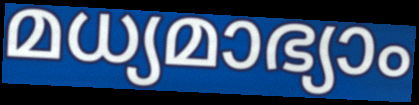
മധ്യമാഭ്യാം